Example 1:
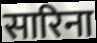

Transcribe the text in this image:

सारिना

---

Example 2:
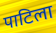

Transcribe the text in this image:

पाटिला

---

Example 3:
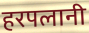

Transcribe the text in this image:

हरपलानी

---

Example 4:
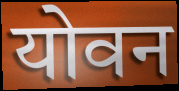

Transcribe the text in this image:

योवन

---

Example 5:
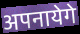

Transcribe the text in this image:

अपनायेगे